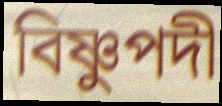
বিষ্ণুপদী